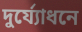
দুর্য্যোধনে